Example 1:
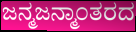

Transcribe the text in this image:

ಜನ್ಮಜನ್ಮಾಂತರದ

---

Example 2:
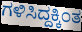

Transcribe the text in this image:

ಗಳಿಸಿದ್ದಕ್ಕಿಂತ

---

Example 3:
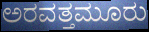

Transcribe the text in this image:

ಅರವತ್ತಮೂರು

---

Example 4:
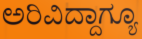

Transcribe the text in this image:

ಅರಿವಿದ್ದಾಗ್ಯೂ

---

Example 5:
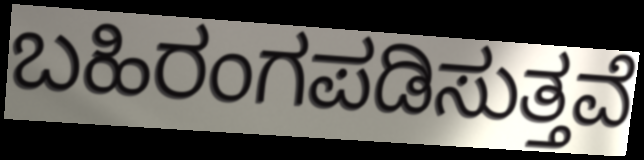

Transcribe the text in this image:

ಬಹಿರಂಗಪಡಿಸುತ್ತವೆ